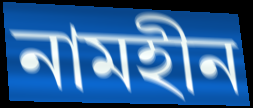
নামহীন